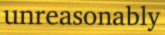
unreasonably